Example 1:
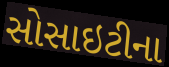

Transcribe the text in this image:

સોસાઇટીના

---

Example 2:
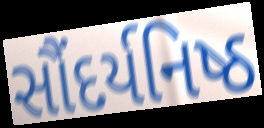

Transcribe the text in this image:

સૌંદર્યનિષ્ઠ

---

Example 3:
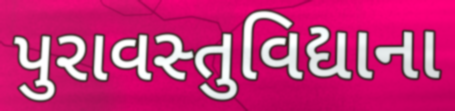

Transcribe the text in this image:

પુરાવસ્તુવિદ્યાના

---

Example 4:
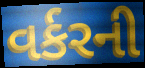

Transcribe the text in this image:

વર્કરની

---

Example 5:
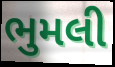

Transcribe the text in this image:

ભુમલી